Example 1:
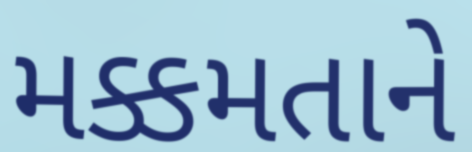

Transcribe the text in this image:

મક્કમતાને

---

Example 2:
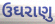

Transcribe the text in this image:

ઉઘરાણુ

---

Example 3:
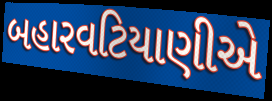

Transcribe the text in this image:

બહારવટિયાણીએ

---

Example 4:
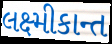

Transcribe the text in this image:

લક્ષ્મીકાન્ત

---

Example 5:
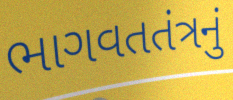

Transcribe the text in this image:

ભાગવતતંત્રનું